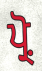
ਪ੍ਰ਼ੋ